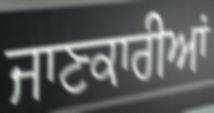
ਜਾਣਕਾਰੀਆਂ